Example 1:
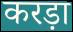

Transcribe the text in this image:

करड़ा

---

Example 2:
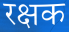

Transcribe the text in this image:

रक्षक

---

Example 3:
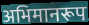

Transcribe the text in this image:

अभिमानरूप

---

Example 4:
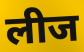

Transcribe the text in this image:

लीज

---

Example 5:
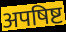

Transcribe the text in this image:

अपषिष्ट